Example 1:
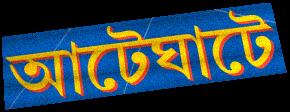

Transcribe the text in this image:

আটেঘাটে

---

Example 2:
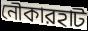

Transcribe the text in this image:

নৌকারহাট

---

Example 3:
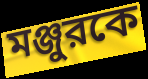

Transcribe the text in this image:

মঞ্জুরকে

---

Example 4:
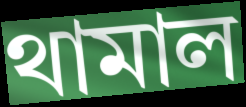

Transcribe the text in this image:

থামাল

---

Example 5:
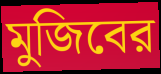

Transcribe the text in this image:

মুজিবের